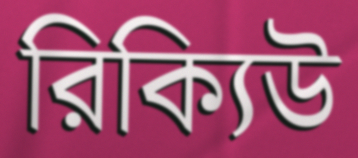
রিক্যিউ